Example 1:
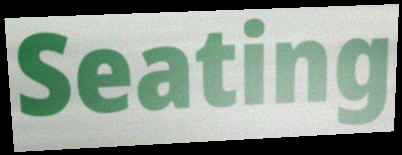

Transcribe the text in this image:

Seating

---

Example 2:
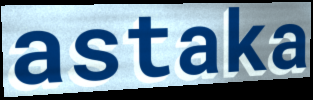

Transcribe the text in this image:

astaka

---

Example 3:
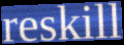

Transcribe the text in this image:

reskill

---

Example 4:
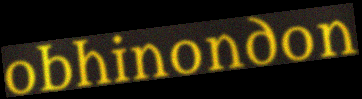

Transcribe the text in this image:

obhinondon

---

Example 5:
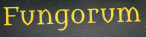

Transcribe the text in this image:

Fungorum